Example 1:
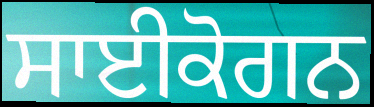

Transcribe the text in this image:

ਸਾਈਕੋਗਨ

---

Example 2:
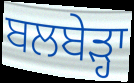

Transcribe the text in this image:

ਬਲਬੇੜ੍ਹਾ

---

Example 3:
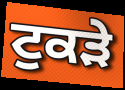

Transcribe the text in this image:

ਟੁਕੜੇ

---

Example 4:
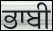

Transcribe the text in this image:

ਭਾਬੀ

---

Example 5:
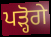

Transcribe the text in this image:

ਪੜ੍ਹੋਗੇ